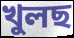
খুলছ